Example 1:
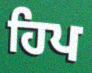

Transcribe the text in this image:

ਹਿਪ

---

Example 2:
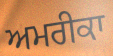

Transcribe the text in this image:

ਅਮਰੀਕਾ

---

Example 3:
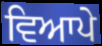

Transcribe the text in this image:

ਵਿਆਪੇ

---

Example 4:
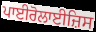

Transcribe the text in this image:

ਪਾਈਰੋਲਾਈਜ਼ਿਸ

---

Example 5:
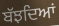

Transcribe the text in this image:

ਬੱਝਦਿਆਂ